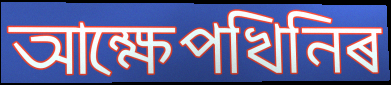
আক্ষেপখিনিৰ